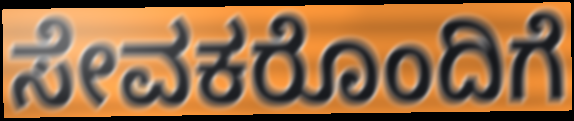
ಸೇವಕರೊಂದಿಗೆ